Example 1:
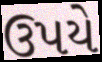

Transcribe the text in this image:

ઉપયે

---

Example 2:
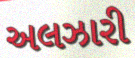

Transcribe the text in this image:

અલઝારી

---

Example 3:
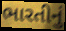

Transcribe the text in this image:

ભારતીનું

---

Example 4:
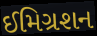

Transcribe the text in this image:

ઈમિગ્રશન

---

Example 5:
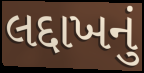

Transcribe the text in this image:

લદ્દાખનું